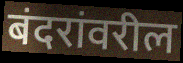
बंदरांवरील